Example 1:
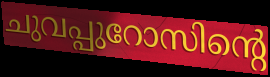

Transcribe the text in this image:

ചുവപ്പുറോസിന്റെ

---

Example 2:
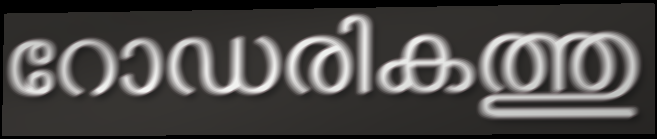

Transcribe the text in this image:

റോഡരികത്തു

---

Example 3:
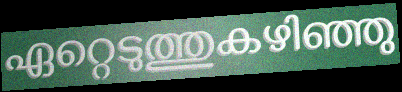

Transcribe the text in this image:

ഏറ്റെടുത്തുകഴിഞ്ഞു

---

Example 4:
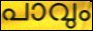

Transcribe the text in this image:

പാവും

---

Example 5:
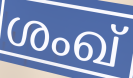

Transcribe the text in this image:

ശംഖ്